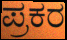
ಪ್ರಕರ